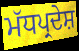
ਮੱਧਪ੍ਰਦੇਸ਼